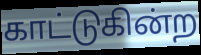
காட்டுகின்ற